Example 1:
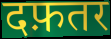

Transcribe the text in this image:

दफ़तर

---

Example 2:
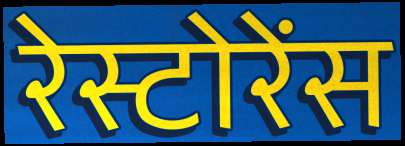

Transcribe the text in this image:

रेस्टोरेंस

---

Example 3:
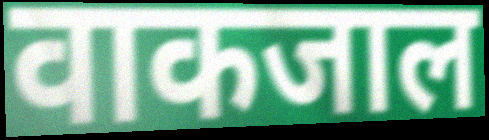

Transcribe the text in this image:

वाकजाल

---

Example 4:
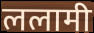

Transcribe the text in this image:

ललामी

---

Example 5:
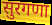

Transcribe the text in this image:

सुरगणा